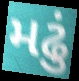
મઢું